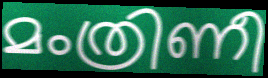
മംത്രിണീ